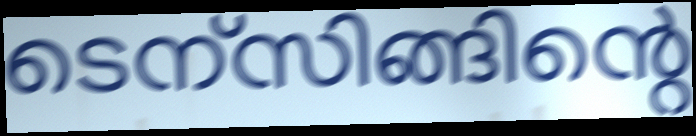
ടെന്സിങ്ങിന്റെ